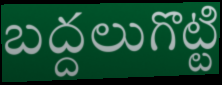
బద్దలుగొట్టి